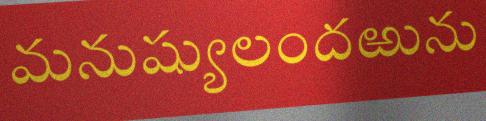
మనుష్యులందఱును